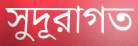
সুদূরাগত